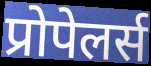
प्रोपेलर्स